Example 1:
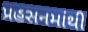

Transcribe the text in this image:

પ્રહસનમાંથી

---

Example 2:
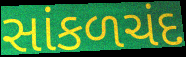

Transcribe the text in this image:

સાંકળચંદ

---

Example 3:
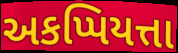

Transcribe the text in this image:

અકપ્પિયત્તા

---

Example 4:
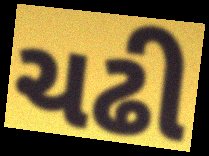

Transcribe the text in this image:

ચઢી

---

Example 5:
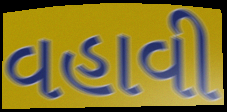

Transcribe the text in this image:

વહાવી